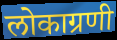
लोकाग्रणी